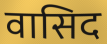
वासिद